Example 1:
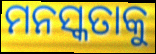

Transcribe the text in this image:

ମନସ୍କତାକୁ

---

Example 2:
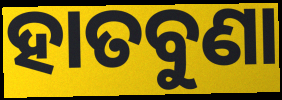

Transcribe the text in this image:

ହାତବୁଣା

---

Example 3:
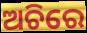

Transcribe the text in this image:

ଅଚିରେ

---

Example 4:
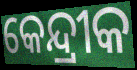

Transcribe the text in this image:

କେନ୍ଦ୍ରୀକ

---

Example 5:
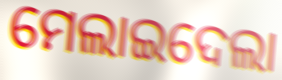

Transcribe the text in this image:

ମେଲାଇଦେଲା